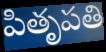
పితృపతి